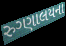
રુગ્ણાલયના